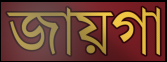
জায়গা